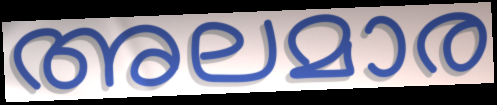
അലമാര